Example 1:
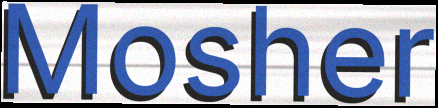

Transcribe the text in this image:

Mosher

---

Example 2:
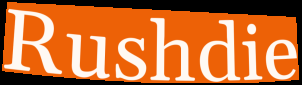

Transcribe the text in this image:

Rushdie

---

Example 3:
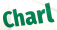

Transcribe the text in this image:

Charl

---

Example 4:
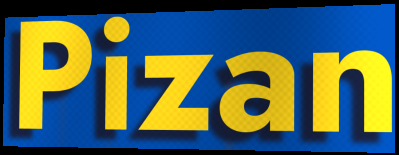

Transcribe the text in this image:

Pizan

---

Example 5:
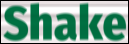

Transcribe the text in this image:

Shake